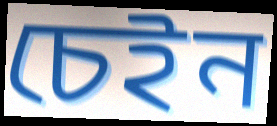
চেইন